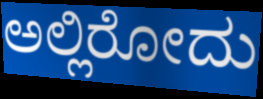
ಅಲ್ಲಿರೋದು